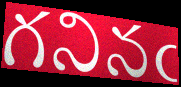
గనినఁ